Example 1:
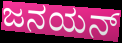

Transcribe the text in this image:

ಜನಯನ್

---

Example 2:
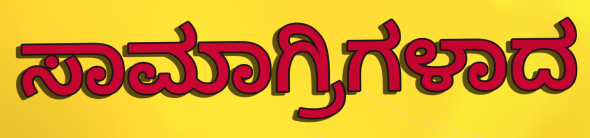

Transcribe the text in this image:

ಸಾಮಾಗ್ರಿಗಳಾದ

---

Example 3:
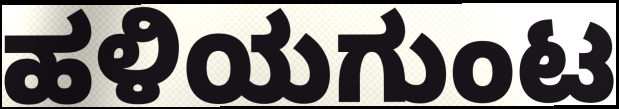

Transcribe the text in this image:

ಹಳಿಯಗುಂಟ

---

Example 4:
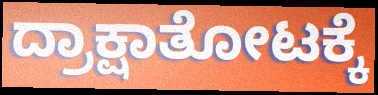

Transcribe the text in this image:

ದ್ರಾಕ್ಷಾತೋಟಕ್ಕೆ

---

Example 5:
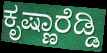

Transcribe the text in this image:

ಕೃಷ್ಣಾರೆಡ್ಡಿ